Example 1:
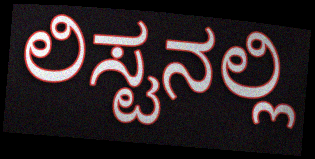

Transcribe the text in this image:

ಲಿಸ್ಟನಲ್ಲಿ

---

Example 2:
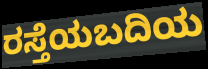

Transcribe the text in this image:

ರಸ್ತೆಯಬದಿಯ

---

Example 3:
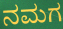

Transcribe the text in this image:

ನಮಗ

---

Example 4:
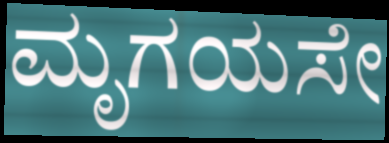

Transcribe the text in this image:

ಮೃಗಯಸೇ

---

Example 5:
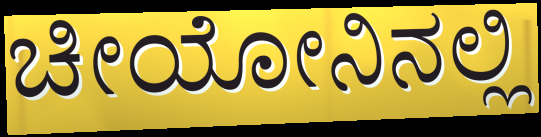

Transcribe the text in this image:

ಚೀಯೋನಿನಲ್ಲಿ